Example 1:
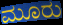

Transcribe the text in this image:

ಮೂರು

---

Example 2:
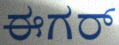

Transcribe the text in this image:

ಈಗರ್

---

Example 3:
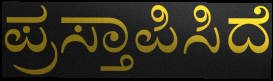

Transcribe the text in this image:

ಪ್ರಸ್ತಾಪಿಸಿದೆ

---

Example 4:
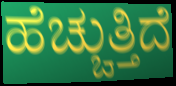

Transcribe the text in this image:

ಹೆಚ್ಚುತ್ತಿದೆ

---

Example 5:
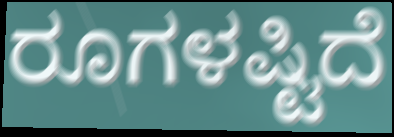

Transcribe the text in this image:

ರೂಗಳಷ್ಟಿದೆ